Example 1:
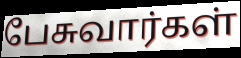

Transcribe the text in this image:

பேசுவார்கள்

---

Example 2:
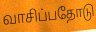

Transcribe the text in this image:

வாசிப்பதோடு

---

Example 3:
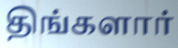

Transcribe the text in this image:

திங்களார்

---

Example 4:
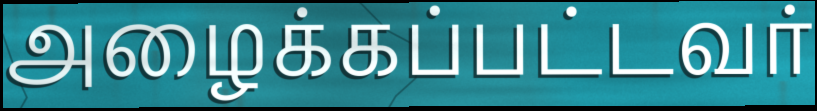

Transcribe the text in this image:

அழைக்கப்பட்டவர்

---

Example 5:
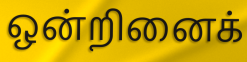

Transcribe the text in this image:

ஒன்றினைக்